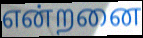
என்றனை